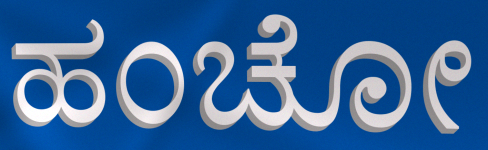
ಹಂಚೋ